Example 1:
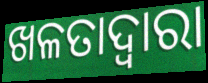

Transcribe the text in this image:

ଖଳତାଦ୍ଵାରା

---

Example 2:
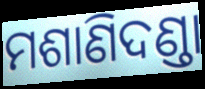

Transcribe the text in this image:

ମଶାଣିଦଣ୍ଡା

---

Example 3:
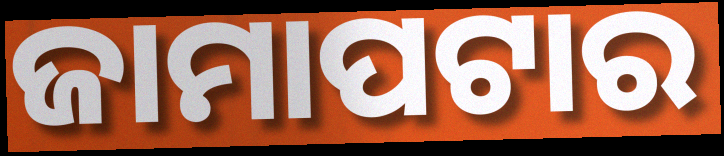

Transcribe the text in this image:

ଜାମାପଟାର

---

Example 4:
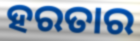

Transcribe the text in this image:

ହରତାର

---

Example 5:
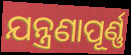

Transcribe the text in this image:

ଯନ୍ତ୍ରଣାପୂର୍ଣ୍ଣ